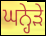
ਘਨ੍ਹੇੜੇ